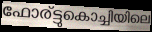
ഫോര്ട്ടുകൊച്ചിയിലെ